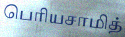
பெரியசாமித்